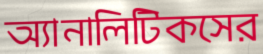
অ্যানালিটিকসের